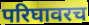
परिघावरच